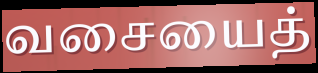
வசையைத்